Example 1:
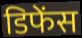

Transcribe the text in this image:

डिफेंस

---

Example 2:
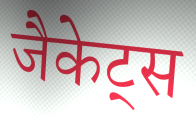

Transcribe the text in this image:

जैकेट्स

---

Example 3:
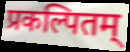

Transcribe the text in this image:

प्रकल्पितम्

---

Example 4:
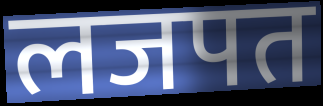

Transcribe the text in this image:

लजपत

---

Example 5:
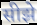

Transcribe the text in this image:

सीझे